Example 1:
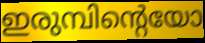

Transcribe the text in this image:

ഇരുമ്പിന്റെയോ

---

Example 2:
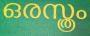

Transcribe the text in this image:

ഒരസ്ത്രം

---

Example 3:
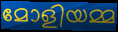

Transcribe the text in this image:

മോളിയമ്മ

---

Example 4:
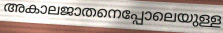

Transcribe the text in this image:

അകാലജാതനെപ്പോലെയുള്ള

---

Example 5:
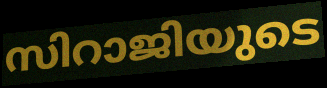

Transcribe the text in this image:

സിറാജിയുടെ